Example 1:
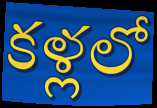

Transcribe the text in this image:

కళ్లలో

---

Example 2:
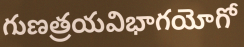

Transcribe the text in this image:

గుణత్రయవిభాగయోగో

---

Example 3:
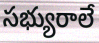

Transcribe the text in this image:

సభ్యురాలే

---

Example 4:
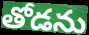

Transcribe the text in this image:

తోడను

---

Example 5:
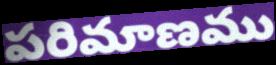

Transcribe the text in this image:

పరిమాణము